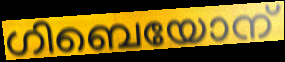
ഗിബെയോന്